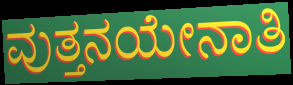
ವುತ್ತನಯೇನಾತಿ